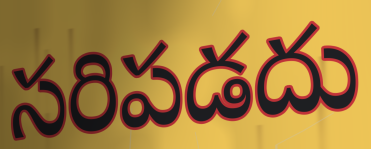
సరిపడదు